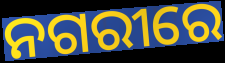
ନଗରୀରେ